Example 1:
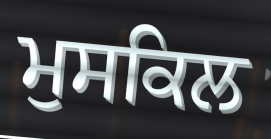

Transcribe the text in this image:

ਮੁਸਕਿਲ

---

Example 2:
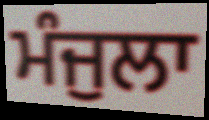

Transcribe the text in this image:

ਮੰਜੁਲਾ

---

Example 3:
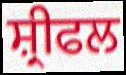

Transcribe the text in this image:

ਸ਼੍ਰੀਫਲ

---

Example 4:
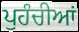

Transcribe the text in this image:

ਪੁਹੰਚੀਆਂ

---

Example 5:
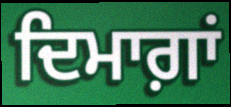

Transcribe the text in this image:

ਦਿਮਾਗ਼ਾਂ